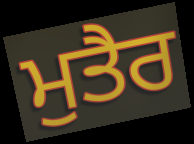
ਮੁਤੈਰ